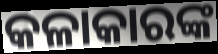
କଳାକାରଙ୍କ